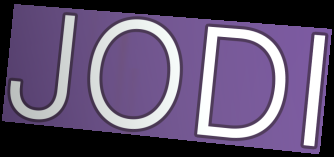
JODI